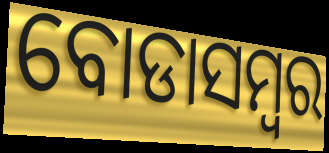
ବୋଡାସମ୍ବର